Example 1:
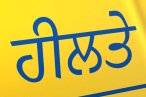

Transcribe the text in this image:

ਹੀਲਤੇ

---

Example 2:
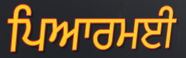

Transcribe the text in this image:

ਪਿਆਰਮਈ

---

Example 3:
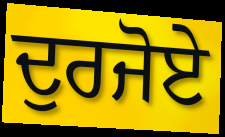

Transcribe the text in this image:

ਦੁਰਜੋਏ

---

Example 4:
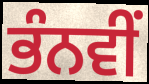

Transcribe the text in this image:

ਭੰਨਵੀਂ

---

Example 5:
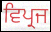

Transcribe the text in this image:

ਵਿਪ੍ਰਜ